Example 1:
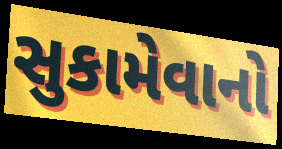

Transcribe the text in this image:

સુકામેવાનો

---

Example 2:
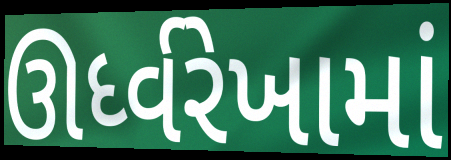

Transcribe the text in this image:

ઊર્ધ્વરેખામાં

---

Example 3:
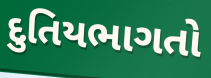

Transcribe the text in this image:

દુતિયભાગતો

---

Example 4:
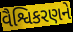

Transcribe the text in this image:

વૈશ્વિકરણને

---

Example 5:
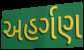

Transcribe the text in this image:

અહર્ગણ